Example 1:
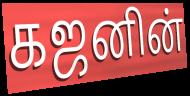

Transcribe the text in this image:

கஜனின்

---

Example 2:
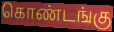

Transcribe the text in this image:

கொண்டங்கு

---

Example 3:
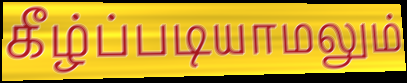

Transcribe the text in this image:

கீழ்ப்படியாமலும்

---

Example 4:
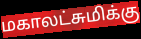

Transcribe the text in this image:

மகாலட்சுமிக்கு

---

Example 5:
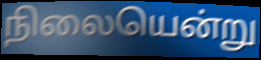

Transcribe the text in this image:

நிலையென்று